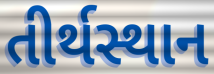
તીર્થસ્થાન